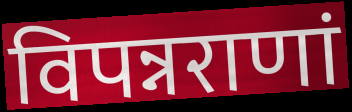
विपन्नराणां